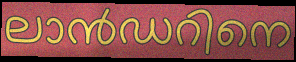
ലാൻഡറിനെ